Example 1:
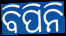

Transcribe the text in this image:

ବିପିନି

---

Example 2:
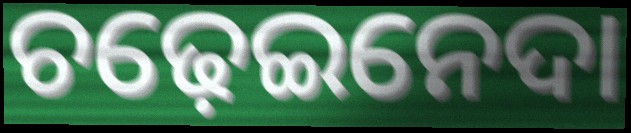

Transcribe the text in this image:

ଚଢ଼େଇନେଦା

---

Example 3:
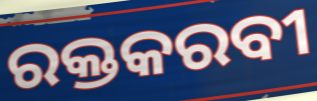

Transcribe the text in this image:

ରକ୍ତକରବୀ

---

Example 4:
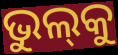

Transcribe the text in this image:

ଭୁଲ୍‍କୁ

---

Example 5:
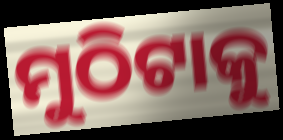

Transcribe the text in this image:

ମୁଠିଟାକୁ